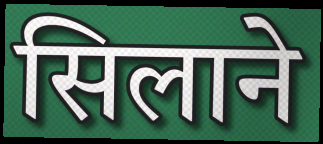
सिलाने